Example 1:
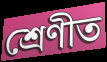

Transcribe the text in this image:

শ্ৰেণীত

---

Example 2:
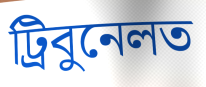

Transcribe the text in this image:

ট্ৰিবুনেলত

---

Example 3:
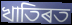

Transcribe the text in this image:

খাতিৰত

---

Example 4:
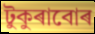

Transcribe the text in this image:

টুকুৰাবোৰ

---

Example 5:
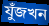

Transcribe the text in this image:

যুঁজখন